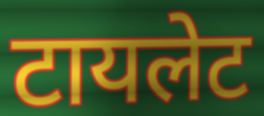
टायलेट